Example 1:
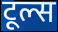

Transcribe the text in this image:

टूल्स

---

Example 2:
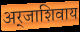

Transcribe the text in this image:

अर्जाशिवाय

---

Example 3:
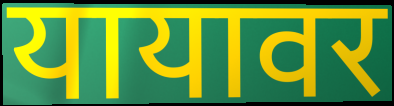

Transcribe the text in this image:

यायावर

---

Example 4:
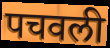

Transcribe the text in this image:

पचवली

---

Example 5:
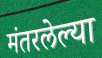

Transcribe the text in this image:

मंतरलेल्या